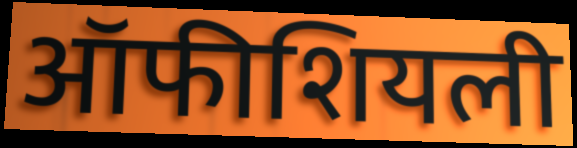
ऑफीशियली